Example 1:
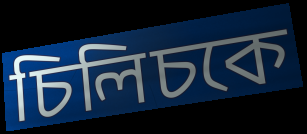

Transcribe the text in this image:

চিলিচকে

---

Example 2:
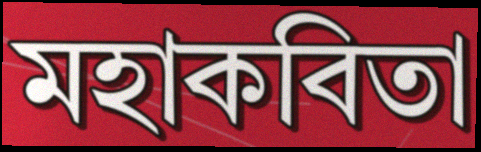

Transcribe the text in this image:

মহাকবিতা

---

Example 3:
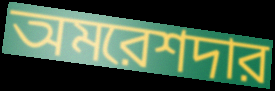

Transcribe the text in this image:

অমরেশদার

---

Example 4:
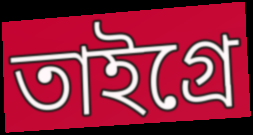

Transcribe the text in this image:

তাইগ্রে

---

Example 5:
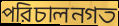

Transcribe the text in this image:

পরিচালনগত